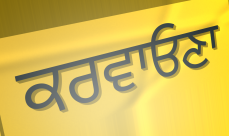
ਕਰਵਾਓਣਾ